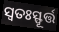
ସ୍ୱତଃସ୍ଫୂର୍ତ୍ତ